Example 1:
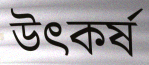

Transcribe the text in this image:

উৎকর্ষ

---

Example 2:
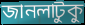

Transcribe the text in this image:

জানলাটুকু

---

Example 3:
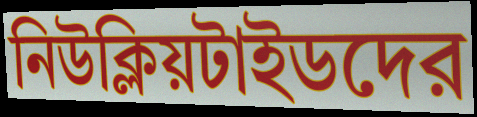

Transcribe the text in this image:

নিউক্লিয়টাইডদের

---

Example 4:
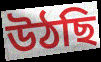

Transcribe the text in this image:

উঠছি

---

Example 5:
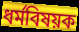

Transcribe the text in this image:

ধর্মবিষয়ক